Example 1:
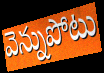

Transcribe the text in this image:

వెన్నుపోటు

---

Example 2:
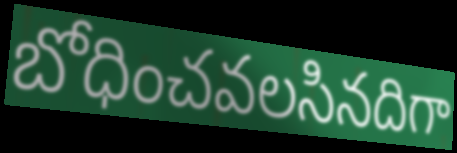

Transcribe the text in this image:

బోధించవలసినదిగా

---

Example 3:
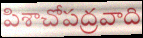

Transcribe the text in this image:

పిశాచోపద్రవాది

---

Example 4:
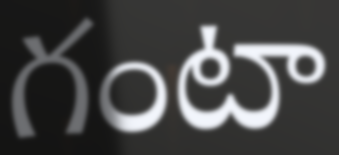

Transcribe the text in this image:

గంటా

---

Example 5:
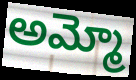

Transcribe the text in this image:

అమ్మో